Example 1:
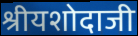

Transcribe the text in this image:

श्रीयशोदाजी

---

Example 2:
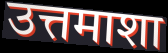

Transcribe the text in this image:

उत्तमाशा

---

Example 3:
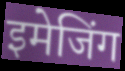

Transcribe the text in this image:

इमेजिंग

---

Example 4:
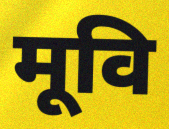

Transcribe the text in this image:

मूवि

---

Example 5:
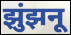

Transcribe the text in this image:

झुंझनू